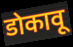
डोकावू